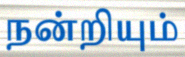
நன்றியும்